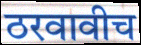
ठरवावीच